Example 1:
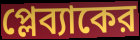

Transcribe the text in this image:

প্লেব্যাকের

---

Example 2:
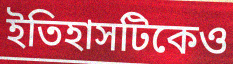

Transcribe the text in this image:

ইতিহাসটিকেও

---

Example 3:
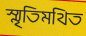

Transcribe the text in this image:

স্মৃতিমথিত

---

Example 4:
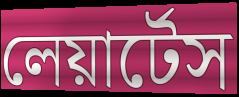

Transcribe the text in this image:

লেয়ার্টেস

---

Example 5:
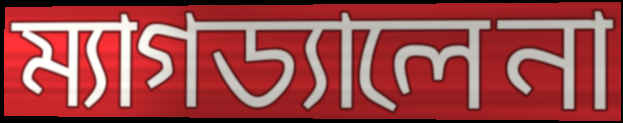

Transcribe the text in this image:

ম্যাগড্যালেনা